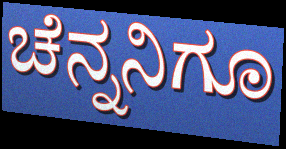
ಚೆನ್ನನಿಗೂ